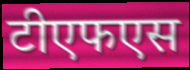
टीएफएस